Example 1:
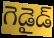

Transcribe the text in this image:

గెడైడ్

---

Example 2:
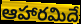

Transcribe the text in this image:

ఆహారమిదే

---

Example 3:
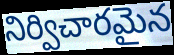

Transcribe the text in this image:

నిర్విచారమైన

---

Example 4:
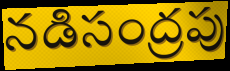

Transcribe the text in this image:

నడిసంద్రపు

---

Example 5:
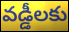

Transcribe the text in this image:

వడ్డీలకు